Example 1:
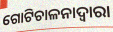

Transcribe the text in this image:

ଗୋଟିଚାଳନାଦ୍ୱାରା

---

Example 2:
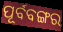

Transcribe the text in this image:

ପୂର୍ବବଙ୍ଗର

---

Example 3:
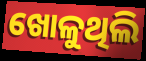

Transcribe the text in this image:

ଖୋଳୁଥିଲି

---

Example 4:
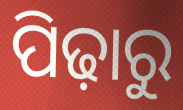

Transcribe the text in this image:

ପିଢ଼ାରୁ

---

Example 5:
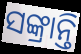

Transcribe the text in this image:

ସଙ୍କ୍ରାନ୍ତି